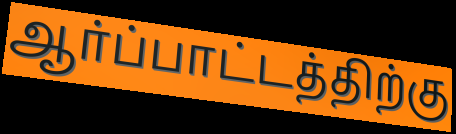
ஆர்ப்பாட்டத்திற்கு